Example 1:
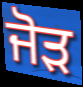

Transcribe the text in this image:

ਜੋੜ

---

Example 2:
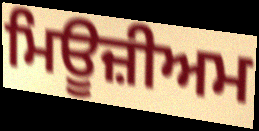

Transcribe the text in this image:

ਮਿਊਜ਼ੀਅਮ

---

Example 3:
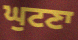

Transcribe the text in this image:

ਘੁਟਣਾ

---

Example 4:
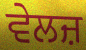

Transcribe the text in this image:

ਵੇਲਜ਼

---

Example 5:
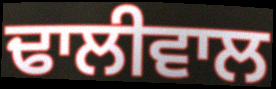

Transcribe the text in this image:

ਢਾਲੀਵਾਲ